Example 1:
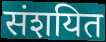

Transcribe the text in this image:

संशयित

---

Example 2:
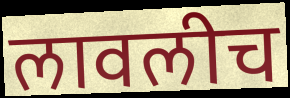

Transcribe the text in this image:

लावलीच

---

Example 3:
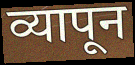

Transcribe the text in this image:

व्यापून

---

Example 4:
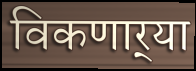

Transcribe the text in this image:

विकणार्या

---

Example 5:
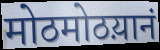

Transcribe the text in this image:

मोठमोठय़ानं